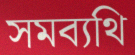
সমব্যথি